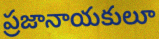
ప్రజానాయకులూ